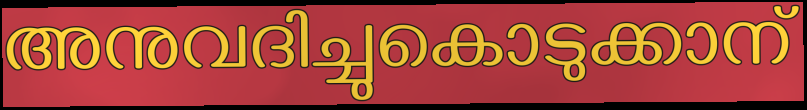
അനുവദിച്ചുകൊടുക്കാന്